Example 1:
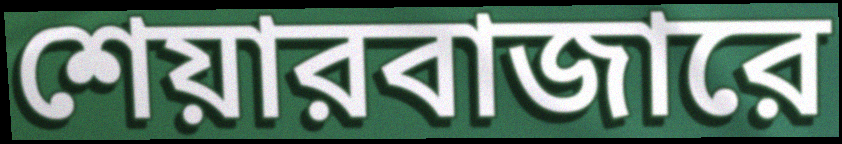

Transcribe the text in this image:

শেয়ারবাজারে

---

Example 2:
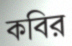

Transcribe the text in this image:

কবির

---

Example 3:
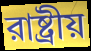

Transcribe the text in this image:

রাষ্ট্রীয়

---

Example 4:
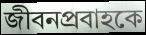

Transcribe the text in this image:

জীবনপ্রবাহকে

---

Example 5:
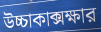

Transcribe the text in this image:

উচ্চাকাক্সক্ষার